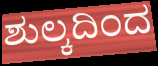
ಶುಲ್ಕದಿಂದ